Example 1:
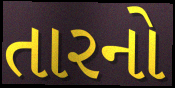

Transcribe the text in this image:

તારનો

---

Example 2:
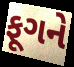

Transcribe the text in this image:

ફૂગને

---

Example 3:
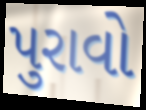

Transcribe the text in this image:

પુરાવો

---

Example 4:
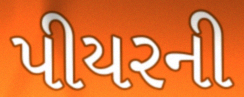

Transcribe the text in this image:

પીયરની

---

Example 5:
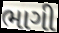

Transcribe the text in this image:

ભાગી